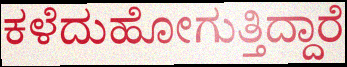
ಕಳೆದುಹೋಗುತ್ತಿದ್ದಾರೆ